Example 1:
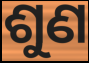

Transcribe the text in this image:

ଶୁଣ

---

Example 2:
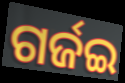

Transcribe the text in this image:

ଗର୍ଜଇ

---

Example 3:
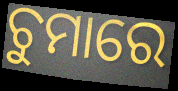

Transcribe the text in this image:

ଚୁମାରେ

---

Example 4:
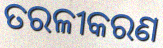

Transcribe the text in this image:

ତରଳୀକରଣ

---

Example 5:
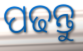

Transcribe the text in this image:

ପଢନ୍ତୁ